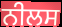
ਨੀਲਸ